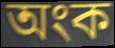
অংক